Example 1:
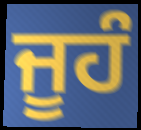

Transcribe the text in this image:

ਜੂਹੰ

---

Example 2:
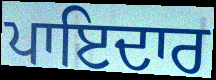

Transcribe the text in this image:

ਪਾਇਦਾਰ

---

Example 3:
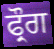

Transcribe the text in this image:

ਫ੍ਰੌਗ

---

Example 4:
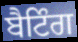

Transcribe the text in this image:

ਬੈਟਿੰਗ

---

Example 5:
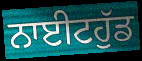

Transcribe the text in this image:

ਨਾਈਟਹੁੱਡ